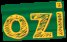
ozi